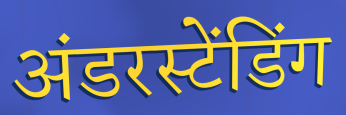
अंडरस्टेंडिंग